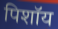
पिशॉय